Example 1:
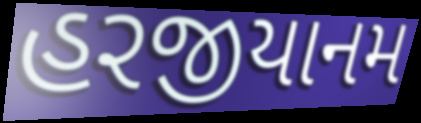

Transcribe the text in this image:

હરજીયાનમ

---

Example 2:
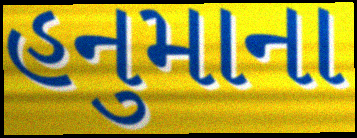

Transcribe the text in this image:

હનુમાના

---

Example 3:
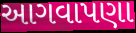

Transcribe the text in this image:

આગવાપણા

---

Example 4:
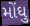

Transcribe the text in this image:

મોંઘુ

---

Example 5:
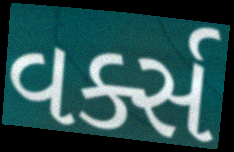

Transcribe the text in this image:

વર્ક્સ